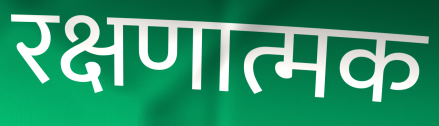
रक्षणात्मक